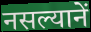
नसल्यानें